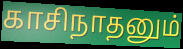
காசிநாதனும்